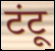
टंटू